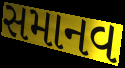
સમાનવ